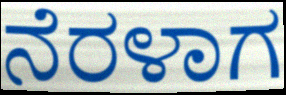
ನೆರಳಾಗ